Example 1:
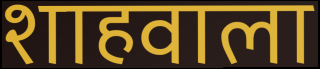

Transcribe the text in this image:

शाहवाला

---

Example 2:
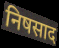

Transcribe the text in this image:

निषसाद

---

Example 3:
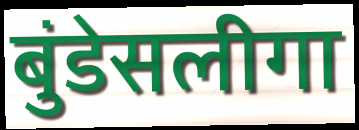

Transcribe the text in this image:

बुंडेसलीगा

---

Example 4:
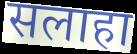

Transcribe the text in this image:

सलाहा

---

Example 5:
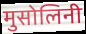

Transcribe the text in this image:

मुसोलिनी